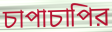
চাপাচাপির